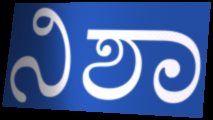
ನಿಶಾ